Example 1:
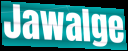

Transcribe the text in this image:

Jawalge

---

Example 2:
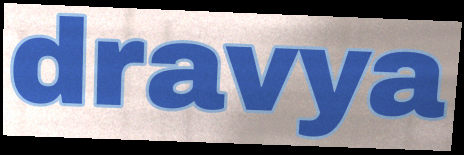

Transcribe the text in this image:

dravya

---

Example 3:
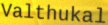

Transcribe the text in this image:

Valthukal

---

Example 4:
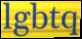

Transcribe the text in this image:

lgbtq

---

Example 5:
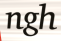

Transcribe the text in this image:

ngh